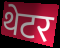
थेटर